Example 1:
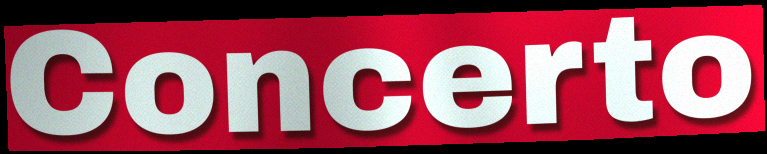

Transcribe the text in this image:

Concerto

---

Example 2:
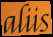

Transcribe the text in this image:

aliis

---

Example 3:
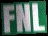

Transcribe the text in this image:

FNL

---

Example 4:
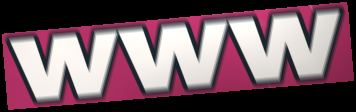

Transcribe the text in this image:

www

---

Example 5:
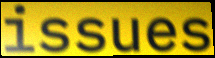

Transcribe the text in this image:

issues